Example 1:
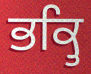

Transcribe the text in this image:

ਭਕ੍ਤਿ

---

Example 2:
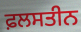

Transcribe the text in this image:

ਫ਼ਲਸਤੀਨ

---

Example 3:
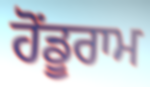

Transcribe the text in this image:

ਹੋਂਡੂਰਾਮ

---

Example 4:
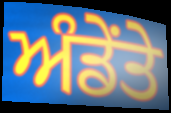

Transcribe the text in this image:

ਅੰਡੇਂਤੇ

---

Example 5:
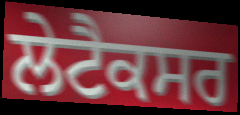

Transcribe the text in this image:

ਲੇਟੈਕਸਰ